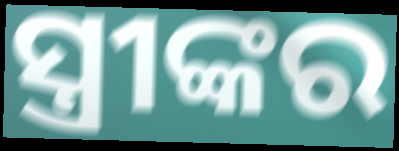
ସ୍ତ୍ରୀଙ୍କର